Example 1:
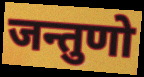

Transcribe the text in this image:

जन्तुणो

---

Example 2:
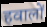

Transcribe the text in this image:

हवालों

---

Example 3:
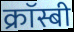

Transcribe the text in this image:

क्रॉस्बी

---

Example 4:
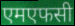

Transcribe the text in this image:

एमएफसी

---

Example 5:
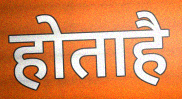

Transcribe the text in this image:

होताहै